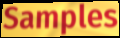
Samples